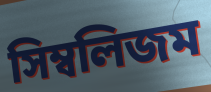
সিম্বলিজম